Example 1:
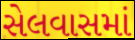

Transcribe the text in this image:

સેલવાસમાં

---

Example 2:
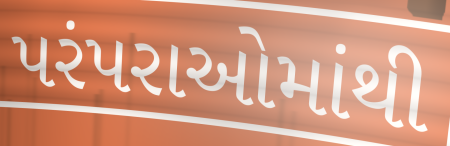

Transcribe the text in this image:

પરંપરાઓમાંથી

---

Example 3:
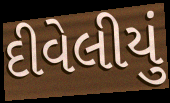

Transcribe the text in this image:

દીવેલીયું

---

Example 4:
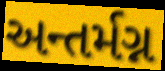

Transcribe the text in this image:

અન્તર્મગ્ન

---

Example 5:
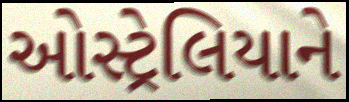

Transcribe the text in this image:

ઓસ્ટ્રેલિયાને